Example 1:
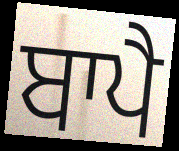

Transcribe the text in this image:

ਬਾਪੈ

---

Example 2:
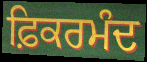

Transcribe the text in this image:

ਫ਼ਿਕਰਮੰਦ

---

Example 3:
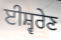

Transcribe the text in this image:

ਈਸ਼੍ਵਰੇਣ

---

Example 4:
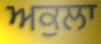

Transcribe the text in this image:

ਅਕੁਲਾ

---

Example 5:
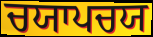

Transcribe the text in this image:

ਚਯਾਪਚਯ